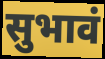
सुभावं